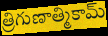
త్రిగుణాత్మికామ్